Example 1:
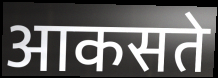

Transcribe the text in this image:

आकसते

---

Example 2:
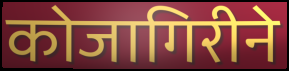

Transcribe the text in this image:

कोजागिरीने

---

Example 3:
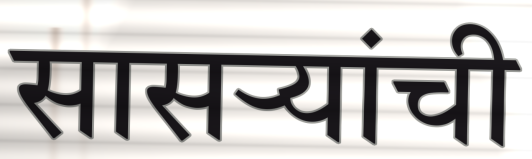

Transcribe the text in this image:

सासऱ्यांची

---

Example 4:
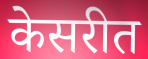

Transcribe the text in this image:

केसरीत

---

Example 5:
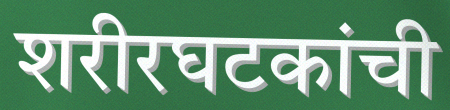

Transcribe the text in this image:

शरीरघटकांची